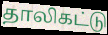
தாலிகட்டு